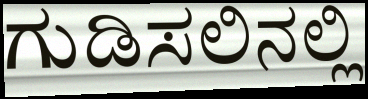
ಗುಡಿಸಲಿನಲ್ಲಿ